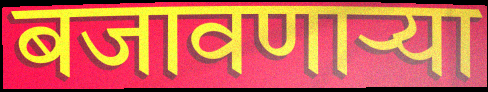
बजावणाऱ्या